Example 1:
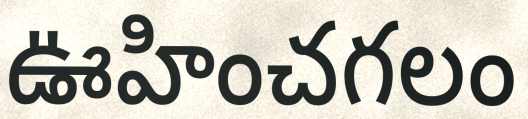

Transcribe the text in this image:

ఊహించగలం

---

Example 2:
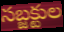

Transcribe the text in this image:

సబ్జక్టుల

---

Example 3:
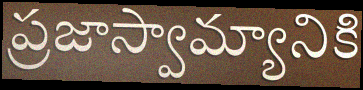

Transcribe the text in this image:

ప్రజాస్వామ్యానికి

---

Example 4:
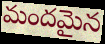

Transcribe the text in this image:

మందమైన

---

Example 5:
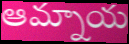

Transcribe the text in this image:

ఆమ్నాయ